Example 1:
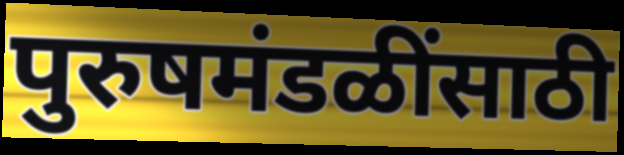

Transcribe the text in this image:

पुरुषमंडळींसाठी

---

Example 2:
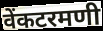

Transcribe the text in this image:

वेंकटरमणी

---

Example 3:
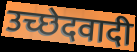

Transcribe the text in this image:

उच्छेदवादी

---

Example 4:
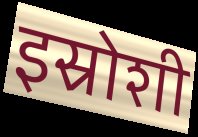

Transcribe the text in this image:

इस्रोशी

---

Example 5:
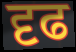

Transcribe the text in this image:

दृढ